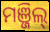
ମଞ୍ଜିଲ୍